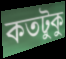
কতটুকু